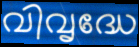
വിവൃദ്ധേ